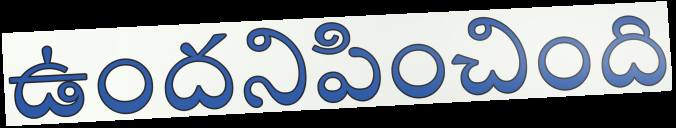
ఉందనిపించింది